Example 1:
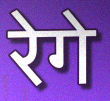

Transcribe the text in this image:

रेगे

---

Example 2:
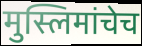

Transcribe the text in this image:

मुस्लिमांचेच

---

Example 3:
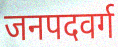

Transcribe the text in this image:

जनपदवर्ग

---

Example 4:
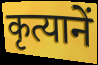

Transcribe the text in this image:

कृत्यानें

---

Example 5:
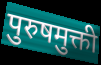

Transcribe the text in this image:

पुरुषमुक्ती